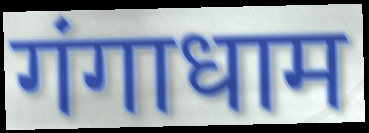
गंगाधाम